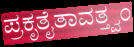
ಪ್ರಕೃತೈತಾವತ್ತ್ವಂ